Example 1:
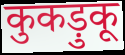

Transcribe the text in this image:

कुकड़ुकू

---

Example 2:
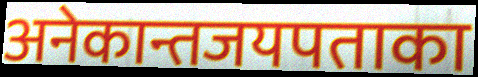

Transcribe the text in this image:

अनेकान्तजयपताका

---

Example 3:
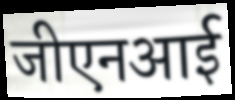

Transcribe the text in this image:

जीएनआई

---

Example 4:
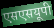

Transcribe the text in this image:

एसएसयूपी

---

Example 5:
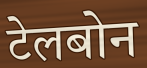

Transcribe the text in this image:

टेलबोन